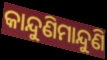
କାନ୍ଦୁଣିମାନ୍ଦୁଣି